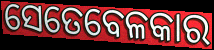
ସେତେବେଳକାର